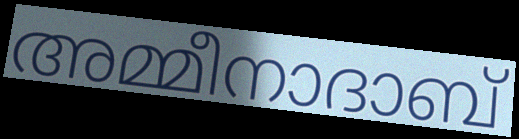
അമ്മീനാദാബ്